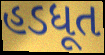
હડધૂત